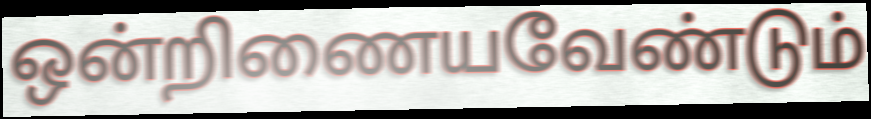
ஒன்றிணையவேண்டும்